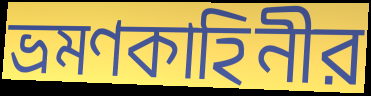
ভ্রমণকাহিনীর